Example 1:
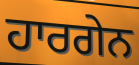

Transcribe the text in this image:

ਹਾਰਗੇਨ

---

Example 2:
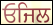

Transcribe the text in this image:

ਓਜਿਲ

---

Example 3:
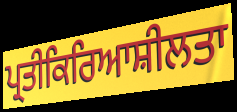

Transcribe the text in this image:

ਪ੍ਰਤੀਕਿਰਿਆਸ਼ੀਲਤਾ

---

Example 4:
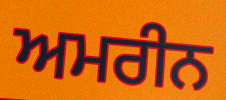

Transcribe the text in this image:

ਅਮਰੀਨ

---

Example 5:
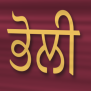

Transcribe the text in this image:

ਭੋਲੀ